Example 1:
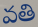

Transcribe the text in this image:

వతి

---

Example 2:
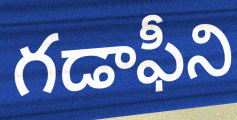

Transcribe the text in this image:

గడాఫీని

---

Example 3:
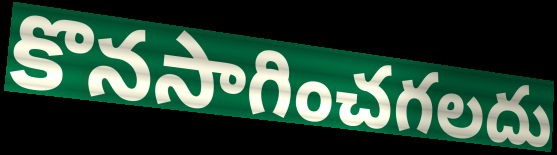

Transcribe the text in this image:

కొనసాగించగలదు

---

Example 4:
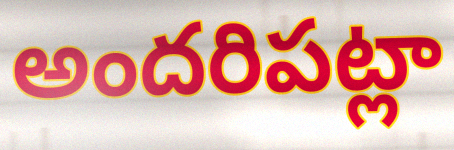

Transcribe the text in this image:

అందరిపట్లా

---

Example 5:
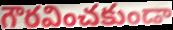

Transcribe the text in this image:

గౌరవించకుండా